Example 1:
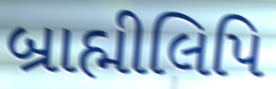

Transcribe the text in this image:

બ્રાહ્મીલિપિ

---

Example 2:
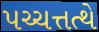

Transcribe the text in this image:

પચ્ચત્તત્થે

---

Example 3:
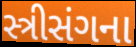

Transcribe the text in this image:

સ્ત્રીસંગના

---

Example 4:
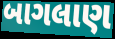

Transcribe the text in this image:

બાગલાણ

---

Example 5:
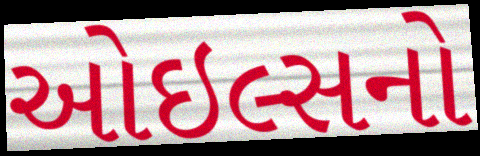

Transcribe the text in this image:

ઓઇલ્સનો